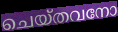
ചെയ്തവനോ